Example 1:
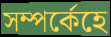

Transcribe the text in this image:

সম্পৰ্কেহে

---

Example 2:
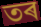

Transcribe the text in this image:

তৰ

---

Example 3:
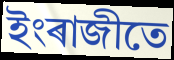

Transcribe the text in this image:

ইংৰাজীতে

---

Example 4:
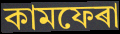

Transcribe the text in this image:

কামফেৰা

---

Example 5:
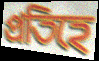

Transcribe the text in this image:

প্ৰতিহে